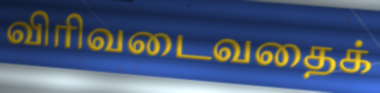
விரிவடைவதைக்